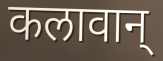
कलावान्